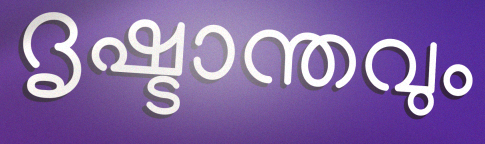
ദൃഷ്ടാന്തവും